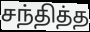
சந்தித்த